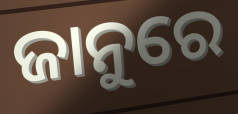
ଜାନୁରେ